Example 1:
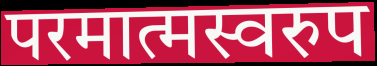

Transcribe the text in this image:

परमात्मस्वरुप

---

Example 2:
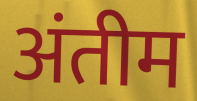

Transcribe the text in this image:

अंतीम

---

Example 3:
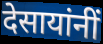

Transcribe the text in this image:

देसायांनीं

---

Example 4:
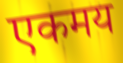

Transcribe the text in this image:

एकमय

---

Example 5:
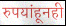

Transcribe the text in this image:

रुपयांहूनही